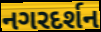
નગરદર્શન